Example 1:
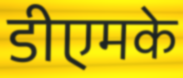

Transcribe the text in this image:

डीएमके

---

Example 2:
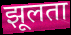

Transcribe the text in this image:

झूलता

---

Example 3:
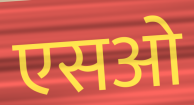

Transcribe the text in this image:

एसओ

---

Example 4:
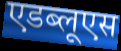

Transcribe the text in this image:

एडब्लूएस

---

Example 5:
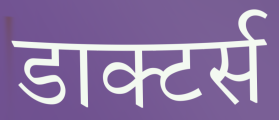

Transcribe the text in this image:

डाक्टर्स